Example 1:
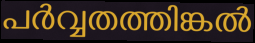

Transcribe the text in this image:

പർവ്വതത്തിങ്കൽ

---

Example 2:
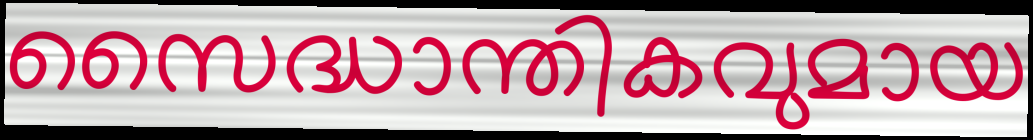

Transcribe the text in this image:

സൈദ്ധാന്തികവുമായ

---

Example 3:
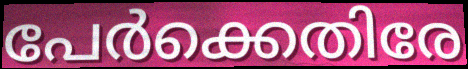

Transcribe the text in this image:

പേർക്കെതിരേ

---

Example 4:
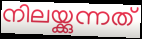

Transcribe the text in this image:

നിലയ്ക്കുന്നത്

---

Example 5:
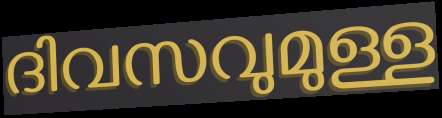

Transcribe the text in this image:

ദിവസവുമുള്ള